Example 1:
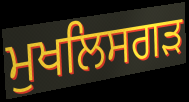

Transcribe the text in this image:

ਮੁਖਲਿਸਗੜ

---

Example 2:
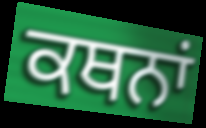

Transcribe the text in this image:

ਕਥਨਾਂ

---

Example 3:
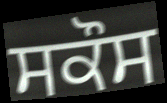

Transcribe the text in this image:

ਸਕੌਸ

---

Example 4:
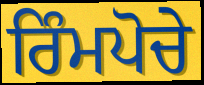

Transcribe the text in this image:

ਰਿੰਮਪੋਚੇ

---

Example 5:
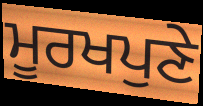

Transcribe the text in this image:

ਮੂਰਖਪੁਣੇ